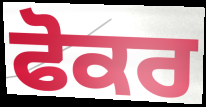
ਫੋਕਰ